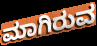
ಮಾಗಿರುವ